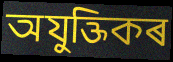
অযুক্তিকৰ